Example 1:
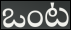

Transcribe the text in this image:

ఒంట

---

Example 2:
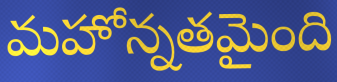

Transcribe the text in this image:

మహోన్నతమైంది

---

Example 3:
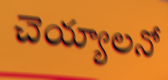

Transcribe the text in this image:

చెయ్యాలనో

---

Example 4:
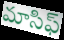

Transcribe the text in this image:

మాసిఫ్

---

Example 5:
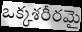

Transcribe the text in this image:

ఒక్కశరీరమై